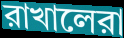
রাখালেরা